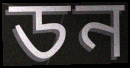
ডন